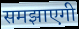
समझाएगी